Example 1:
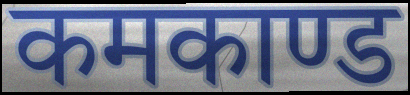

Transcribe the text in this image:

कमकाण्ड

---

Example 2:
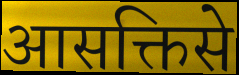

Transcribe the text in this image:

आसक्तिसे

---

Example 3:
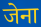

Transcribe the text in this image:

जेना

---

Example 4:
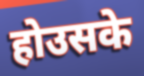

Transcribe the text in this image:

होउसके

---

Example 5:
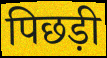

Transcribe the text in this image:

पिछड़ी